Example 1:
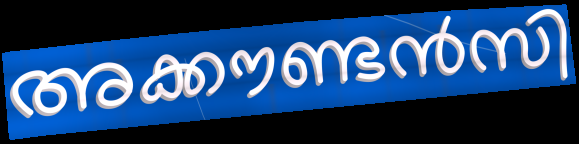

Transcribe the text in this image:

അക്കൗണ്ടൻസി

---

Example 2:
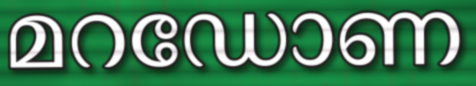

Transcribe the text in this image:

മറഡോണ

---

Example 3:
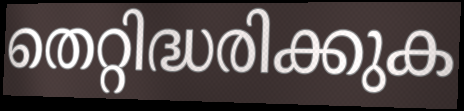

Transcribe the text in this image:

തെറ്റിദ്ധരിക്കുക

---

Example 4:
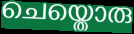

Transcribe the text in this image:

ചെയ്തൊരു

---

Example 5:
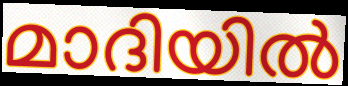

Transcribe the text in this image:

മാദിയിൽ